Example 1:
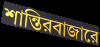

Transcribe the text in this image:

শান্তিরবাজারে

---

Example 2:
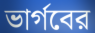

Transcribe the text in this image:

ভার্গবের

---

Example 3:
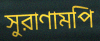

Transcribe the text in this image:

সুরাণামপি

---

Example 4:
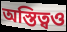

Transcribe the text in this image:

অস্তিত্বও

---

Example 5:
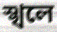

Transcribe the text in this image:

স্খলে